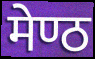
मेण्ठ